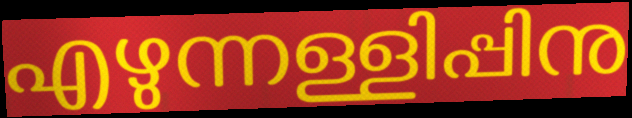
എഴുന്നള്ളിപ്പിനു